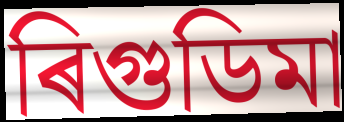
ৰিগুডিমা